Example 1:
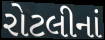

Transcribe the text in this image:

રોટલીનાં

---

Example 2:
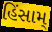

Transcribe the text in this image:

હિંસામ્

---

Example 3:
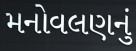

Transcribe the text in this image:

મનોવલણનું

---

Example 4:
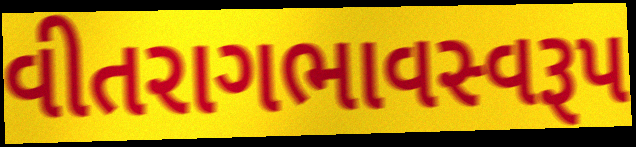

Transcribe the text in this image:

વીતરાગભાવસ્વરૂપ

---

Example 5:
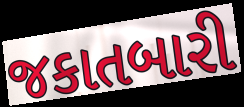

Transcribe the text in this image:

જકાતબારી